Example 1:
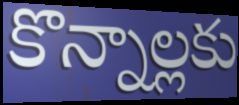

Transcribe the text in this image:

కొన్నాల్లకు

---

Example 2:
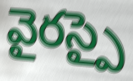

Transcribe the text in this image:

వైరస్పై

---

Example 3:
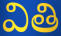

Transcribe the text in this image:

వితి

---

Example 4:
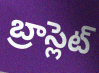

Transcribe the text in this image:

బ్రాస్లెట్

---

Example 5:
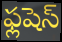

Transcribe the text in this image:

ఫ్లషెస్